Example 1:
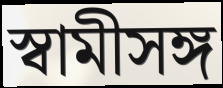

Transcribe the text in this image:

স্বামীসঙ্গ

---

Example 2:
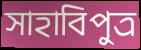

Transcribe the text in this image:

সাহাবিপুত্র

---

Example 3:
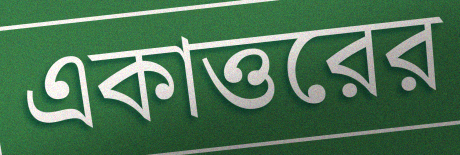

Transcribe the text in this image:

একাত্তরের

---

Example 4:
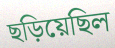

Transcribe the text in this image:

ছড়িয়েছিল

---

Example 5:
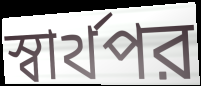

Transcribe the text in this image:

স্বার্থপর